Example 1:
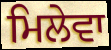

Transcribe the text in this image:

ਮਿਲੇਵਾ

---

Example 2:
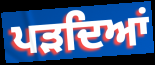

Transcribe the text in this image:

ਪੜਦਿਆਂ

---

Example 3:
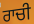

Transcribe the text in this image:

ਰਾਚੀ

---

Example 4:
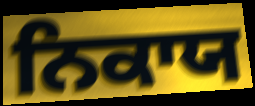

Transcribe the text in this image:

ਨਿਕਾਯ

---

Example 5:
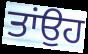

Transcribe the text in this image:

ਤਾਂਉਹ